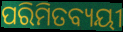
ପରିମିତବ୍ୟୟୀ